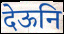
देऊनि